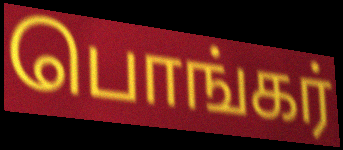
பொங்கர்